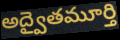
అద్వైతమూర్తి